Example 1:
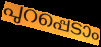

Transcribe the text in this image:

പുറപ്പെടാം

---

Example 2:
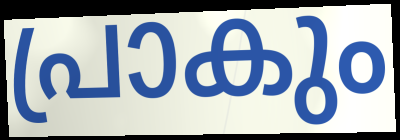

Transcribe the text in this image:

പ്രാകും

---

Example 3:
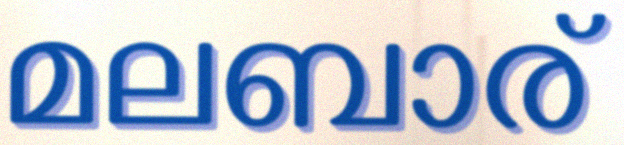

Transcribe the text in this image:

മലബാര്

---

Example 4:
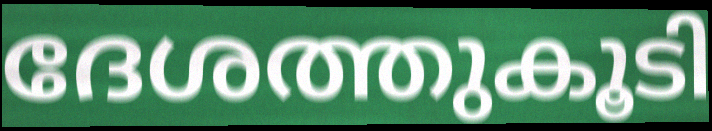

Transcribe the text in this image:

ദേശത്തുകൂടി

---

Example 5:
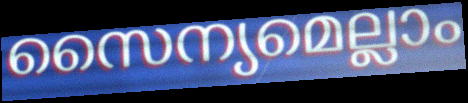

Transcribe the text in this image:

സൈന്യമെല്ലാം